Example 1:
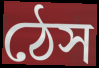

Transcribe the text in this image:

ঠেস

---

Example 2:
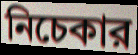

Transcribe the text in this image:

নিচেকার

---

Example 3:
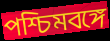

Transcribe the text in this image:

পশ্চিমবঙ্গে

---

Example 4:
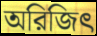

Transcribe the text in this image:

অরিজিৎ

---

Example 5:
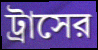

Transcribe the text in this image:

ট্রাসের